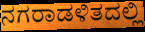
ನಗರಾಡಳಿತದಲ್ಲಿ